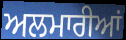
ਅਲਮਾਰੀਆਂ